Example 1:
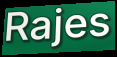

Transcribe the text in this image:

Rajes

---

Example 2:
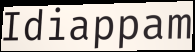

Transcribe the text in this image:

Idiappam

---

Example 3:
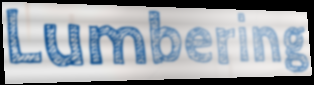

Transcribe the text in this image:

Lumbering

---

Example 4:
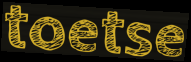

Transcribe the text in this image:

toetse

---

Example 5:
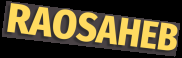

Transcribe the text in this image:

RAOSAHEB